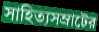
সাহিত্যসম্রাটের